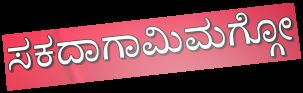
ಸಕದಾಗಾಮಿಮಗ್ಗೋ